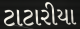
ટાટારીયા